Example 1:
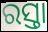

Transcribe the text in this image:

ରସ୍ତା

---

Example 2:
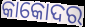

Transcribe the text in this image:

କାକୋଦର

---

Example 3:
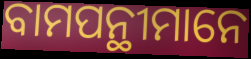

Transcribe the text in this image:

ବାମପନ୍ଥୀମାନେ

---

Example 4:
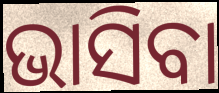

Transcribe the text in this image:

ଭାସିବା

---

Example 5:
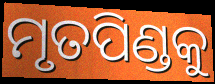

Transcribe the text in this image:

ମୃତପିଣ୍ଡକୁ